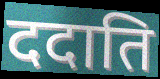
ददाति